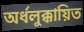
অর্ধলুক্কায়িত